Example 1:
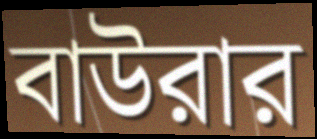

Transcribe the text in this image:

বাউরার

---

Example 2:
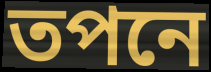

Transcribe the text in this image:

তপনে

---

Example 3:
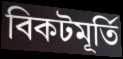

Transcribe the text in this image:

বিকটমূর্তি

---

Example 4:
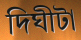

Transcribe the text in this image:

দিঘীটা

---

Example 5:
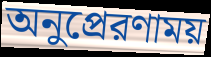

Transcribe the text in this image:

অনুপ্রেরণাময়